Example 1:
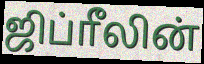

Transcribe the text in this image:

ஜிப்ரீலின்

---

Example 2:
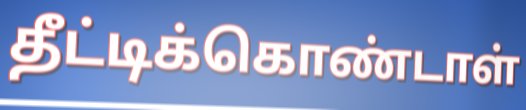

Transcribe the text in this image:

தீட்டிக்கொண்டாள்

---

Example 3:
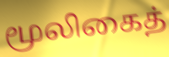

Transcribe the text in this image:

மூலிகைத்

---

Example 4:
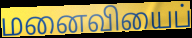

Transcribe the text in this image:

மனைவியைப்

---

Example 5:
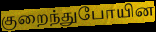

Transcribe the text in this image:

குறைந்துபோயின